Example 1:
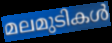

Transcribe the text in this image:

മലമുടികൾ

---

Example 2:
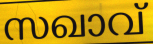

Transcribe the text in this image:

സഖാവ്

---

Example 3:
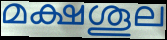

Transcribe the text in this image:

മക്ഷശൂല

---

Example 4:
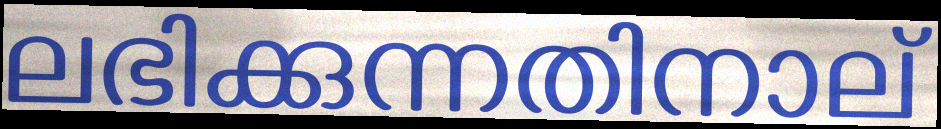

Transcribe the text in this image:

ലഭിക്കുന്നതിനാല്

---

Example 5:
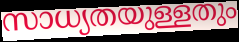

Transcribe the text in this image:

സാധ്യതയുള്ളതും